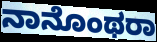
ನಾನೊಂಥರಾ